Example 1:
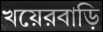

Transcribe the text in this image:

খয়েরবাড়ি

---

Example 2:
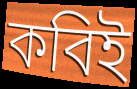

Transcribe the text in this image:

কবিই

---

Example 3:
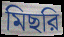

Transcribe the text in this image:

মিছরি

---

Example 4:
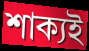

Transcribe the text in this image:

শাক্যই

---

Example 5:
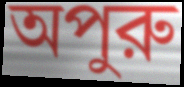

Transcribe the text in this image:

অপুরু